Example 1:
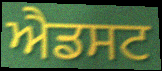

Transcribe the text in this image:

ਐਡਸਟ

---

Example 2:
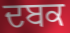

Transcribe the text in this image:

ਦਬਕ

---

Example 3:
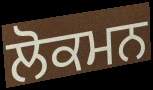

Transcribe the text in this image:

ਲੋਕਮਨ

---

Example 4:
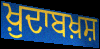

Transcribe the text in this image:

ਖ਼ੁਦਾਬਖ਼ਸ਼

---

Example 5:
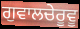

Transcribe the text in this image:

ਗੁਵਾਲਚੇਰੂਵੂ